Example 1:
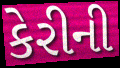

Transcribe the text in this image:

કેરીની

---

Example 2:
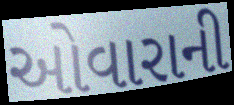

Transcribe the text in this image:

ઓવારાની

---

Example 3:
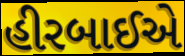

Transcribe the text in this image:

હીરબાઈએ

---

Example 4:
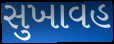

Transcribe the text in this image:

સુખાવહ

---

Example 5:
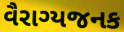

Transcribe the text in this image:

વૈરાગ્યજનક